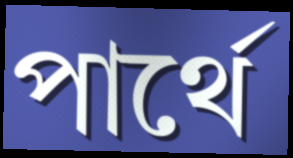
পার্থে